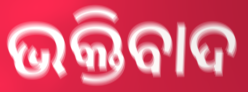
ଭକ୍ତିବାଦ